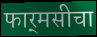
फार्मसीचा